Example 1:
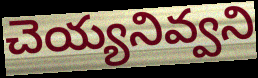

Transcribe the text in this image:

చెయ్యనివ్వని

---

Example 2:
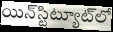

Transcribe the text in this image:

యిన్‌స్టిట్యూట్‌లో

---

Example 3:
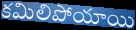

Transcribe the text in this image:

కమిలిపోయాయి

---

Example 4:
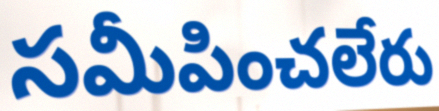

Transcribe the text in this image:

సమీపించలేరు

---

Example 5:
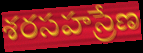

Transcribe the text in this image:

శరసహస్రేణ